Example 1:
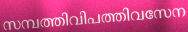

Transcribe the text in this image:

സമ്പത്തിവിപത്തിവസേന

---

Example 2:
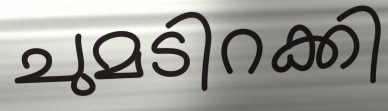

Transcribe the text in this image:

ചുമടിറക്കി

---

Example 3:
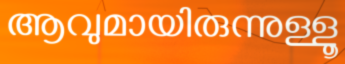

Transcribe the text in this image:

ആവുമായിരുന്നുള്ളൂ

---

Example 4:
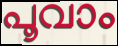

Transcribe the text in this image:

പൂവാം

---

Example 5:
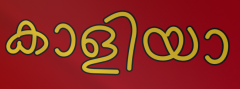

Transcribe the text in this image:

കാളിയാ